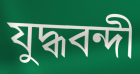
যুদ্ধবন্দী